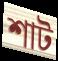
শাট